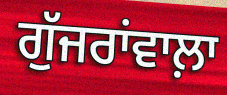
ਗੁੱਜਰਾਂਵਾਲ਼ਾ